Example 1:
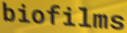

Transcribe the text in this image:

biofilms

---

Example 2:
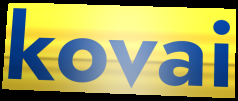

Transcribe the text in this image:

kovai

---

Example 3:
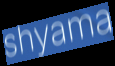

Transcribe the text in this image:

shyama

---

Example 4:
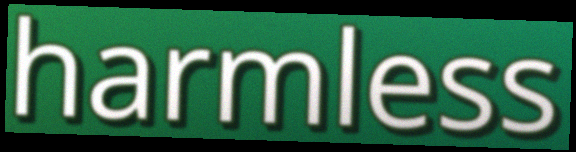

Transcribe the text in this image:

harmless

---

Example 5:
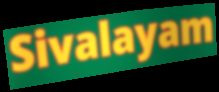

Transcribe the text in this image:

Sivalayam